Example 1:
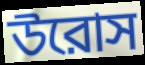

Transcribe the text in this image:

উরোস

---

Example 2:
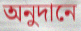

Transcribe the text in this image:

অনুদানে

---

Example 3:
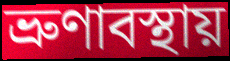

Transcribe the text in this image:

ভ্রুণাবস্থায়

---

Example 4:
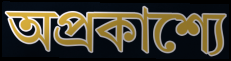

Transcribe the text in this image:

অপ্রকাশ্যে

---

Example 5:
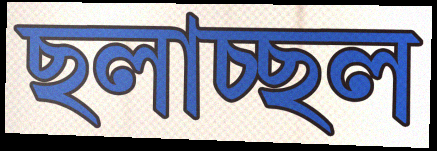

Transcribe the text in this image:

ছলাচ্ছল